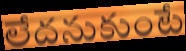
లేదనుకుంటే